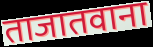
ताजातवाना